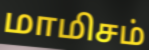
மாமிசம்